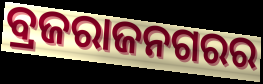
ବ୍ରଜରାଜନଗରର